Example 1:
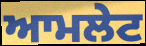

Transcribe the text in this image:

ਆਮਲੇਟ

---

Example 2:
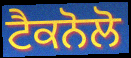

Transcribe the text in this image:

ਟੈਕਨੋਲੋ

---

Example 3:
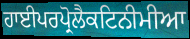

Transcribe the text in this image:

ਹਾਈਪਰਪ੍ਰੋਲੈਕਟਿਨੀਮੀਆ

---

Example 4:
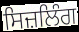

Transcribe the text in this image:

ਸਿਜ਼ਲਿੰਗ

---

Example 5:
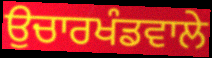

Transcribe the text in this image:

ਉਚਾਰਖੰਡਵਾਲੇ